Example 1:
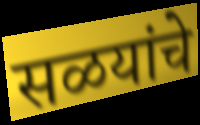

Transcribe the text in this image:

सळयांचे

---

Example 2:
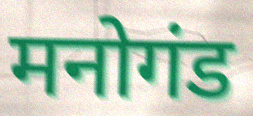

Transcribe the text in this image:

मनोगंड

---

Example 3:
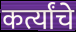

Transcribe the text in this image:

कर्त्यांचे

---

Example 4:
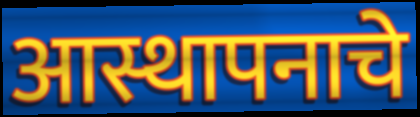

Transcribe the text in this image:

आस्थापनाचे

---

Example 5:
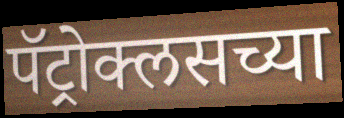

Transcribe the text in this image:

पॅट्रोक्लसच्या